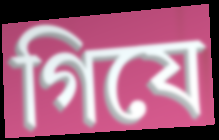
গিযে